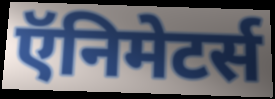
ऍनिमेटर्स